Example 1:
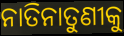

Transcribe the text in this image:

ନାତିନାତୁଣୀକୁ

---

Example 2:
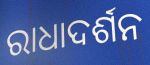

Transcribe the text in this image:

ରାଧାଦର୍ଶନ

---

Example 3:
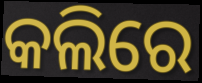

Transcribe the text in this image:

କଲିରେ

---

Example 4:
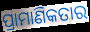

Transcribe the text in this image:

ପ୍ରାମାଣିକତାର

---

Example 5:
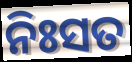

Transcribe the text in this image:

ନିଃସତ